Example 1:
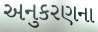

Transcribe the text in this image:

અનુકરણના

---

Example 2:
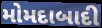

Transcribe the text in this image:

મોમદાબાદી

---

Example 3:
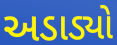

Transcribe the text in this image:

અડાડ્યો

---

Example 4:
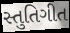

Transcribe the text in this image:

સ્તુતિગીત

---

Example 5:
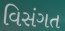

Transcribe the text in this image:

વિસંગત